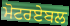
ਮੋਟਰਏਬਲ